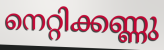
നെറ്റിക്കണ്ണു